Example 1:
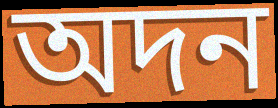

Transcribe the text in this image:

অদন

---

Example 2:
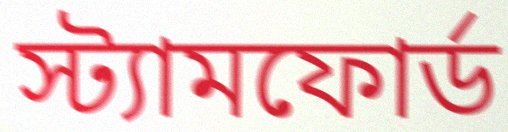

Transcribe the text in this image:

স্ট্যামফোর্ড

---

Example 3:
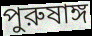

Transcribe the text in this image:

পুরুষাঙ্গ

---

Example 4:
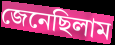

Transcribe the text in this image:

জেনেছিলাম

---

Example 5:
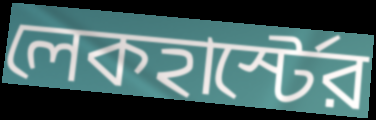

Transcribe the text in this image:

লেকহার্স্টের